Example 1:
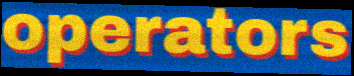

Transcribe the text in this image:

operators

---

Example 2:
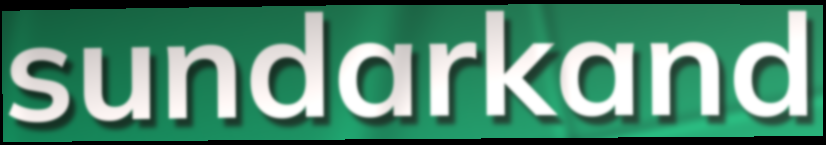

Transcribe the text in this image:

sundarkand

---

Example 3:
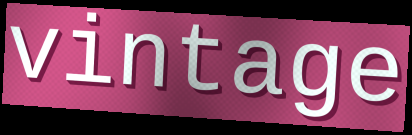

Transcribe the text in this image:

vintage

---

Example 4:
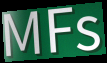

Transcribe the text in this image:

MFs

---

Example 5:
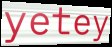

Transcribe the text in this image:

yetey